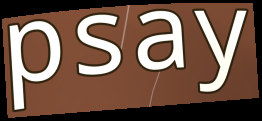
psay